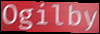
Ogilby